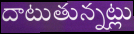
దాటుతున్నట్లు